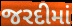
જરદીમાં